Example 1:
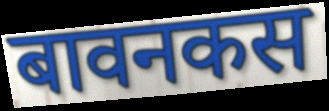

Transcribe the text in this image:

बावनकस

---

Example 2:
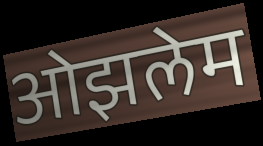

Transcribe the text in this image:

ओझलेम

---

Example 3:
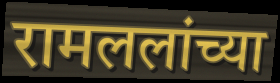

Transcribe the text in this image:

रामललांच्या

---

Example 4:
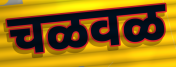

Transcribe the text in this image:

चळवळ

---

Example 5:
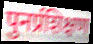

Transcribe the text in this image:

पुनर्प्रशिक्षण